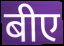
बीए